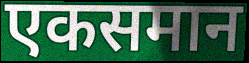
एकसमान